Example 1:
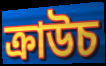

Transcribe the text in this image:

ক্রাউচ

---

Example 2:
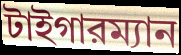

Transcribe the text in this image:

টাইগারম্যান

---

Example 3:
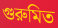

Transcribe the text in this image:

গুরুমিত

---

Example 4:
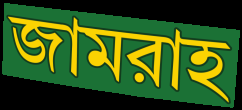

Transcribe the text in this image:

জামরাহ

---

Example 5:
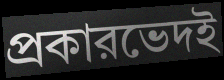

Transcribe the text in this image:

প্রকারভেদই